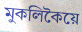
মুকলিকৈয়ে